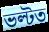
ভল্টত